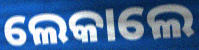
ଲେକାଲେ